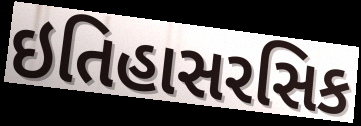
ઇતિહાસરસિક